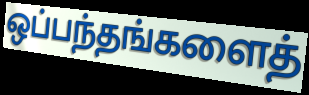
ஒப்பந்தங்களைத்